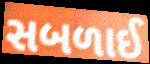
સબળાઈ